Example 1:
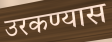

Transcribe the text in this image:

उरकण्यास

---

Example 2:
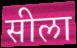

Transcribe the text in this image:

सीला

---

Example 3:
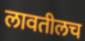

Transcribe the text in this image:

लावतीलच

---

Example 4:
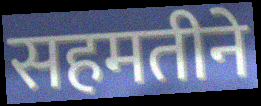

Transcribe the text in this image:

सहमतीने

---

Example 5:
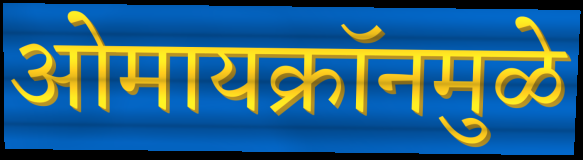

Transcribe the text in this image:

ओमायक्रॉनमुळे